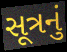
સૂત્રનું